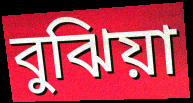
বুঝিয়া